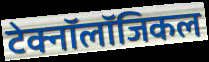
टेक्नॉलॉजिकल